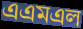
এএমএল